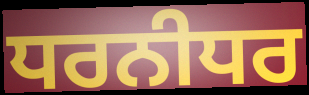
ਧਰਨੀਧਰ